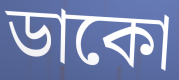
ডাকো